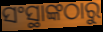
ସଂସ୍ଥାଙ୍କଠାରୁ